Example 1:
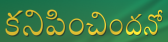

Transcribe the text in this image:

కనిపించిందనో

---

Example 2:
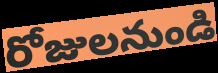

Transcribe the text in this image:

రోజులనుండి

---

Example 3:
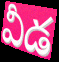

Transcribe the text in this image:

వీడ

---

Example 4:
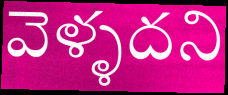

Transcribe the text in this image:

వెళ్ళదని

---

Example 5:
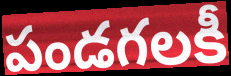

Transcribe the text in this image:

పండగలకీ